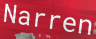
Narren